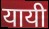
यायी